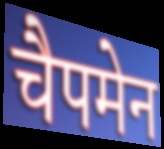
चैपमेन